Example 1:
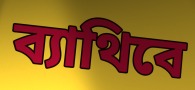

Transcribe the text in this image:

ব্যাথিবে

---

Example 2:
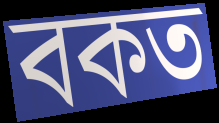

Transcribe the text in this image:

বকত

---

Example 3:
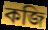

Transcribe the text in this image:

কজি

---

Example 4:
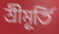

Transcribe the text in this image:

শ্রীমূর্তি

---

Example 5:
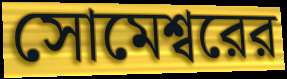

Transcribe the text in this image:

সোমেশ্বরের